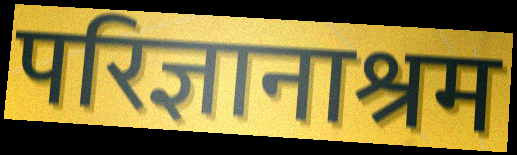
परिज्ञानाश्रम